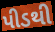
પીડથી